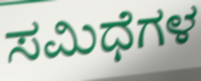
ಸಮಿಧೆಗಳ